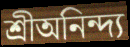
শ্রীঅনিন্দ্য